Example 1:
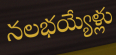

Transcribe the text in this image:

నలభయ్యేళ్లు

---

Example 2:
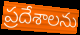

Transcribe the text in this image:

ప్రదేశాలను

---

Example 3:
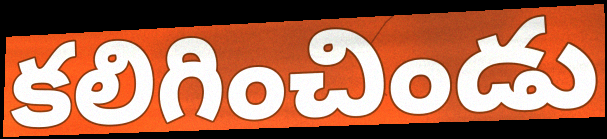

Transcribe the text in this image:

కలిగించిండు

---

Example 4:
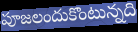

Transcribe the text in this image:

పూజలందుకొంటున్నది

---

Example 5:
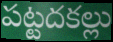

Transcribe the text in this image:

పట్టదకల్లు